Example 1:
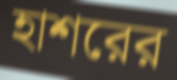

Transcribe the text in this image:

হাশরের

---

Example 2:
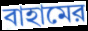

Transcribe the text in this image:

বাহামের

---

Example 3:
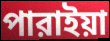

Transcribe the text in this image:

পারাইয়া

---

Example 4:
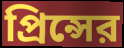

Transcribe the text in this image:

প্রিন্সের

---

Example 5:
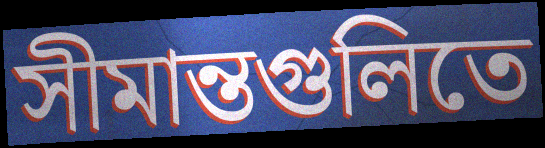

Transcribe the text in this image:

সীমান্তগুলিতে